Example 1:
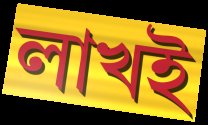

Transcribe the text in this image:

লাখই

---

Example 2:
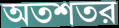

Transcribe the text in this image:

অতশতর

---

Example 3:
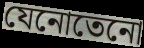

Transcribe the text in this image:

যেনোতেনো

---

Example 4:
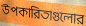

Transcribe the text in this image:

উপকারিতাগুলোর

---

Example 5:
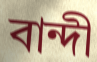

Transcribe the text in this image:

বান্দী